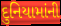
દુનિયામાંની